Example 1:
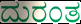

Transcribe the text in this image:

ದುರಂತ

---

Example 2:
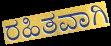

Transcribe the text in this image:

ರಹಿತವಾಗಿ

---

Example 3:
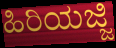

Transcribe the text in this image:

ಹಿರಿಯಜ್ಜಿ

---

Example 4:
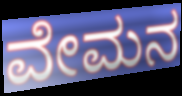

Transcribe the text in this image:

ವೇಮನ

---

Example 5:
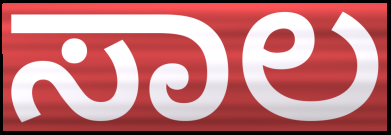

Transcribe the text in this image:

ಸಾಲ